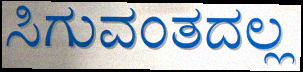
ಸಿಗುವಂತದಲ್ಲ